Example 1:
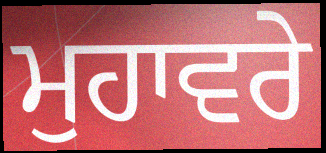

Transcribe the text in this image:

ਮੁਹਾਵਰੇ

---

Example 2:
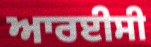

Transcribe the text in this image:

ਆਰਈਸੀ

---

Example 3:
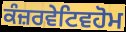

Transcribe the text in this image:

ਕੰਜ਼ਰਵੇਟਿਵਹੋਮ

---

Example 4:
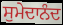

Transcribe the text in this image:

ਸੁਮੇਦਾਨੰਦ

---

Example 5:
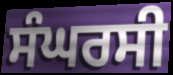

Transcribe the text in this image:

ਸੰਘਰਸੀ